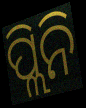
ପ୍ଲିନି